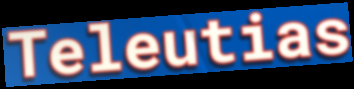
Teleutias